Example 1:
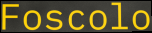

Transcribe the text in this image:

Foscolo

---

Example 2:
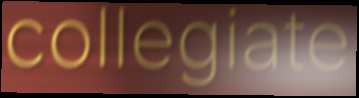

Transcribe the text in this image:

collegiate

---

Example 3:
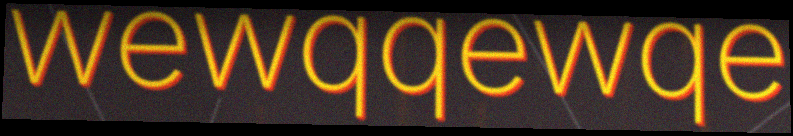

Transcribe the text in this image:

wewqqewqe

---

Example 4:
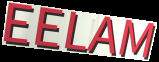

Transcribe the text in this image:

EELAM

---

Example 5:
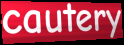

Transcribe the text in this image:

cautery